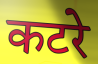
कटरे